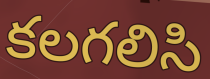
కలగలిసి